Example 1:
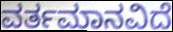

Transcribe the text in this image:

ವರ್ತಮಾನವಿದೆ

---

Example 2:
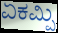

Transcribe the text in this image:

ಏಕಮ್ಪಿ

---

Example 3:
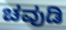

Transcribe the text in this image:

ಚವುಡಿ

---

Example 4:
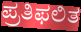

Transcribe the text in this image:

ಪ್ರತಿಫಲಿತ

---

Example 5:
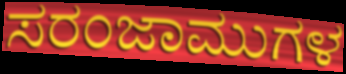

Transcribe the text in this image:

ಸರಂಜಾಮುಗಳ